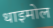
थाइमोल